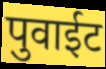
पुवाईट